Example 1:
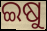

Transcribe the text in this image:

ଇଷୁ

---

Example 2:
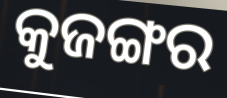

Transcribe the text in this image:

କୁଜଙ୍ଗର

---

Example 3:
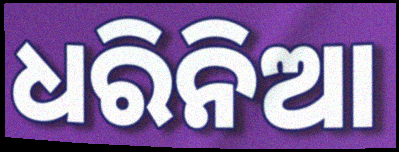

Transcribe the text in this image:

ଧରିନିଆ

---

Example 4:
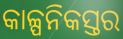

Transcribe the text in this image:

କାଳ୍ପନିକସ୍ତର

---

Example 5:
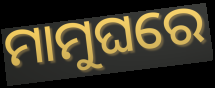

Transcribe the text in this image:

ମାମୁଘରେ